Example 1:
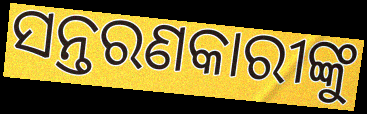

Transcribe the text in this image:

ସନ୍ତରଣକାରୀଙ୍କୁ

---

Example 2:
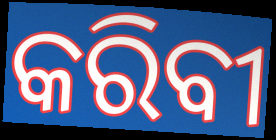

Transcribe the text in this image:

କରିବୀ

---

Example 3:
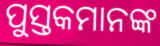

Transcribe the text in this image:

ପୁସ୍ତକମାନଙ୍କ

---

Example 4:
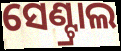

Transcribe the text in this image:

ସେଣ୍ଟ୍ରାଲ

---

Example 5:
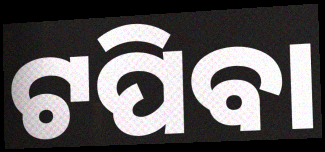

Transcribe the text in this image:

ଟପିବା